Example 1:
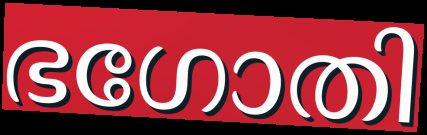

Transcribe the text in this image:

ഭഗോതി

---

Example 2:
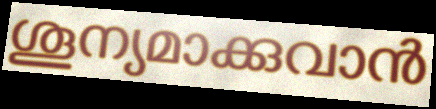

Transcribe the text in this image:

ശൂന്യമാക്കുവാൻ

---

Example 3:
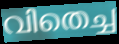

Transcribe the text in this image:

വിതെച്ച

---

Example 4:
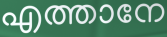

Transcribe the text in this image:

എത്താനേ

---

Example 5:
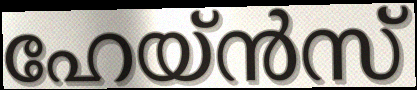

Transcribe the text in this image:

ഹേയ്ൻസ്